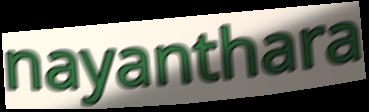
nayanthara